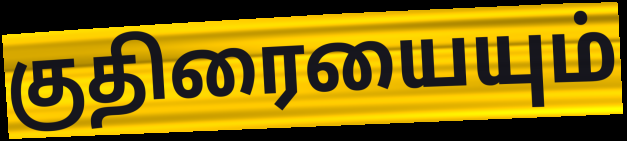
குதிரையையும்